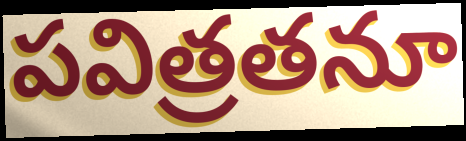
పవిత్రతనూ